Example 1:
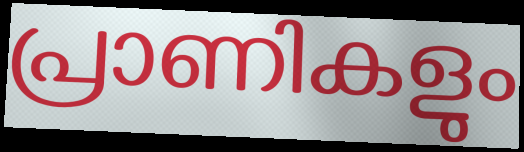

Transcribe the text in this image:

പ്രാണികളും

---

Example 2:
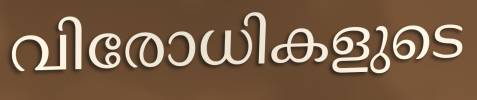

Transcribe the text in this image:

വിരോധികളുടെ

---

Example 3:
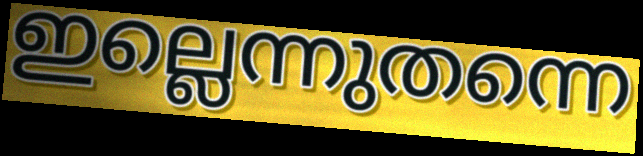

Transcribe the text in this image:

ഇല്ലെന്നുതന്നെ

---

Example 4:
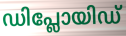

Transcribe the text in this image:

ഡിപ്ലോയിഡ്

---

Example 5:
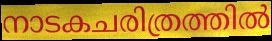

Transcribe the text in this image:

നാടകചരിത്രത്തിൽ